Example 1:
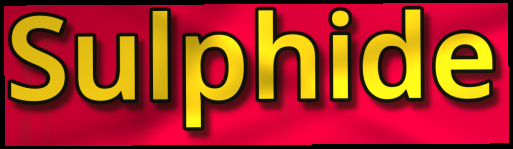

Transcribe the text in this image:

Sulphide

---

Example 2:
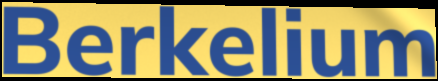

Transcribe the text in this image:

Berkelium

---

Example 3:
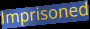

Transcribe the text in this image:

Imprisoned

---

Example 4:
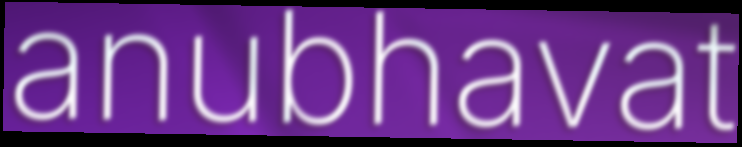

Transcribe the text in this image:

anubhavat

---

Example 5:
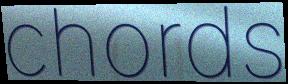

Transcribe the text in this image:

chords